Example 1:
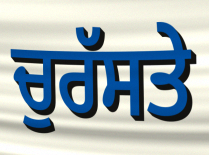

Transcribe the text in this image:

ਚੁਰੱਸਤੇ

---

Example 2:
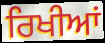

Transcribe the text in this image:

ਰਿਖੀਆਂ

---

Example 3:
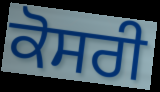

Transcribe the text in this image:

ਕੋਸਰੀ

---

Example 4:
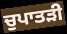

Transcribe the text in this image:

ਚੁਪਾਤੜੀ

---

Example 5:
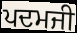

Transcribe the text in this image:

ਪਦਮਜੀ